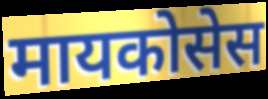
मायकोसेस